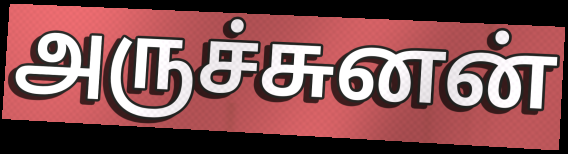
அருச்சுனன்